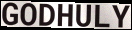
GODHULY